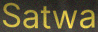
Satwa